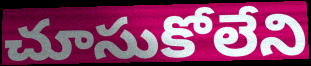
చూసుకోలేని